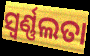
ସ୍ଵର୍ଣ୍ଣଲତା